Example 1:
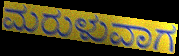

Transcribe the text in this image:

ಮರುಳುವಾಗ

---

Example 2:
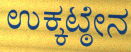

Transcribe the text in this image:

ಉಕ್ಕಟ್ಠೇನ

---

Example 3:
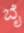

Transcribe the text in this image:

ಬೈ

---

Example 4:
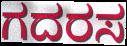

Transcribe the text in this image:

ಗದರಸ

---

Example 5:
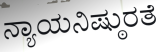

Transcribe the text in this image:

ನ್ಯಾಯನಿಷ್ಠುರತೆ